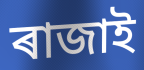
ৰাজাই